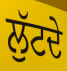
ਲੁੱਟਦੇ